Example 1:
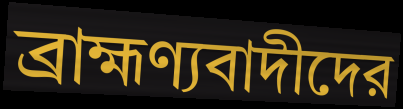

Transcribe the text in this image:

ব্রাহ্মণ্যবাদীদের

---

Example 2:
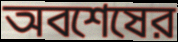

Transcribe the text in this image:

অবশেষের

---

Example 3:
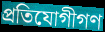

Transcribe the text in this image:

প্রতিযোগীগণ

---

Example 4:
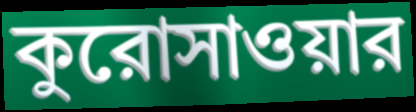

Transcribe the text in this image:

কুরোসাওয়ার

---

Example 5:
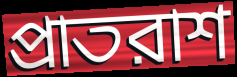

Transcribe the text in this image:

প্রাতরাশ